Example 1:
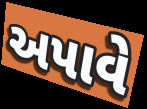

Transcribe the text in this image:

અપાવે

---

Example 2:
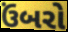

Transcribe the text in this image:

ઉંબરો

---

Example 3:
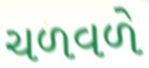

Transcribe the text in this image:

ચળવળે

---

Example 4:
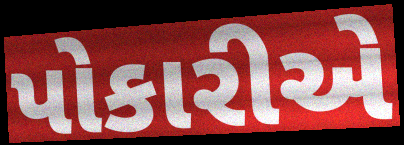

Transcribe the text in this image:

પોકારીએ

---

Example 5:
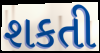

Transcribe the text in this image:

શકતી